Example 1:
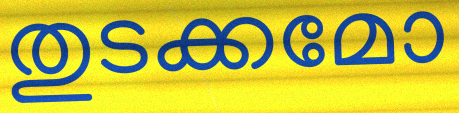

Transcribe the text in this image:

തുടക്കമോ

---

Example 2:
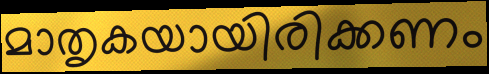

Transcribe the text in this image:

മാതൃകയായിരിക്കണം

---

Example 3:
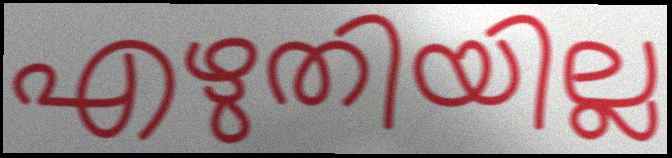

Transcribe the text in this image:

എഴുതിയില്ല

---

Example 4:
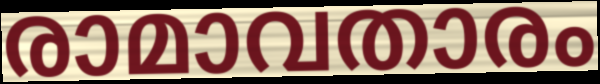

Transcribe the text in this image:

രാമാവതാരം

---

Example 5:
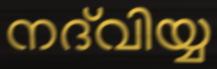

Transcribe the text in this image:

നദ്‌വിയ്യ